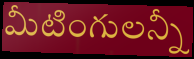
మీటింగులన్నీ